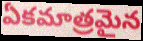
ఏకమాత్రమైన